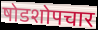
षोडशोपचार